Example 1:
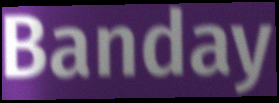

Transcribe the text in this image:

Banday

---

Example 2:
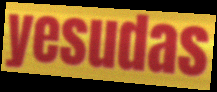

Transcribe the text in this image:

yesudas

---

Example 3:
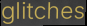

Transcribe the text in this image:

glitches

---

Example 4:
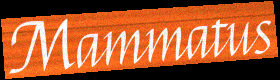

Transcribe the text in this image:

Mammatus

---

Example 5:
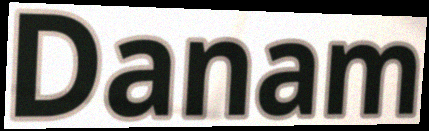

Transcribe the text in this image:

Danam